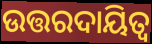
ଉତ୍ତରଦାୟିତ୍ଵ